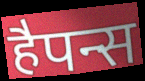
हैपन्स